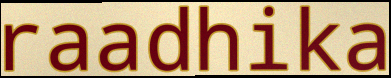
raadhika